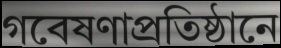
গবেষণাপ্রতিষ্ঠানে